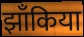
झाँकिया